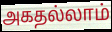
அகதல்லாம்